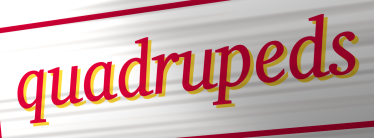
quadrupeds